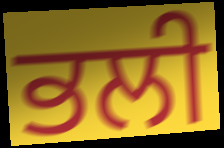
ਭਲੀ